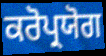
ਕਰੋਪ੍ਰਯੋਗ